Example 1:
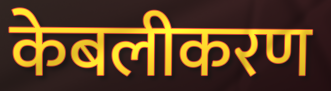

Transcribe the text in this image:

केबलीकरण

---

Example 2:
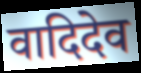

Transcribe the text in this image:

वादिदेव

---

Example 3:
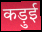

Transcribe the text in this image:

कड़ुई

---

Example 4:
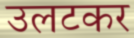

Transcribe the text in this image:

उलटकर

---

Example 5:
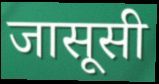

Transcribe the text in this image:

जासूसी